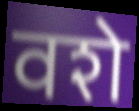
वशे